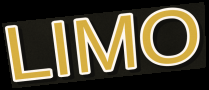
LIMO